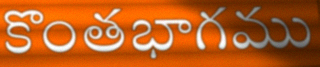
కొంతభాగము